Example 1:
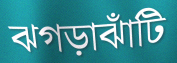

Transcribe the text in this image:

ঝগড়াঝাঁটি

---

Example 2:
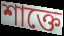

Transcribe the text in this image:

শাক্তে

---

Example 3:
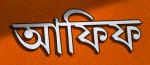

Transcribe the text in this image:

আফিফ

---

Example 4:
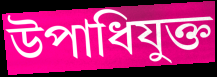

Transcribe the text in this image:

উপাধিযুক্ত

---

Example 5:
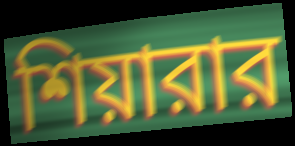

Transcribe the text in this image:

শিয়ারার